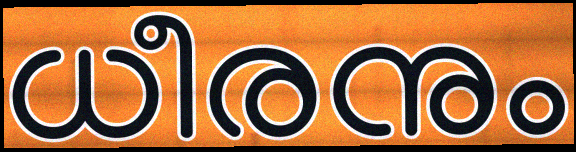
ധീരനും